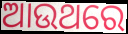
ଆଉଥରେ